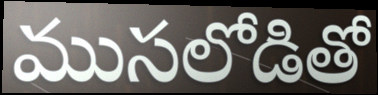
ముసలోడితో